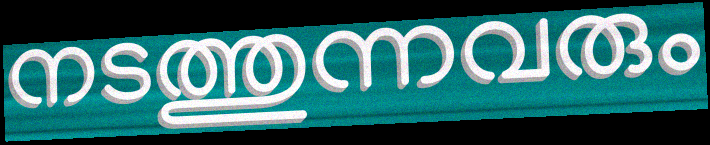
നടത്തുന്നവരും